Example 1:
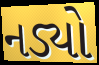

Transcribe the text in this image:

નડ્યો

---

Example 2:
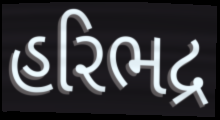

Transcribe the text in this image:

હરિભદ્ર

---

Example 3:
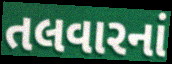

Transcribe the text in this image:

તલવારનાં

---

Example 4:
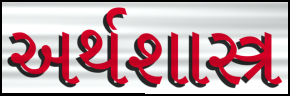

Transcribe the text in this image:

અર્થશાસ્ત્ર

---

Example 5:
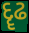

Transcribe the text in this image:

દૄઢ